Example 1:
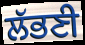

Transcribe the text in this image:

ਲੱਭਣੀ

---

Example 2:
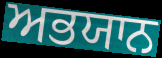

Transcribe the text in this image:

ਅਭਯਾਨ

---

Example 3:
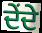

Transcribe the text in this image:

ਦੇਂਦੇ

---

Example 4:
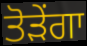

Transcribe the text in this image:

ਤੋੜੇਂਗਾ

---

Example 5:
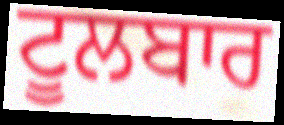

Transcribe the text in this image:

ਟੂਲਬਾਰ